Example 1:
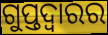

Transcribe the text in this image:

ଗୁପ୍ତଦ୍ୱାରର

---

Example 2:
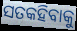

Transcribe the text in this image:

ସତକହିବାକୁ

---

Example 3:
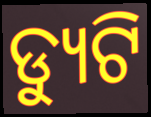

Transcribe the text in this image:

ଡ୍ୟୁଟି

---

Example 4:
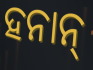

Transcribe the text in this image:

ହନାନ୍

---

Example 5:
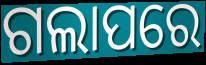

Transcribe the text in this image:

ଗଲାପରେ